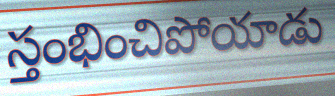
స్తంభించిపోయాడు